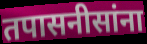
तपासनीसांना